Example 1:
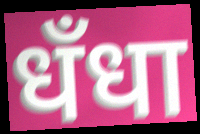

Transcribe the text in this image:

धँधा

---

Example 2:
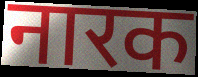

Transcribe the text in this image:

नारक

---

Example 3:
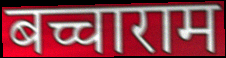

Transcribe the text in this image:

बच्चाराम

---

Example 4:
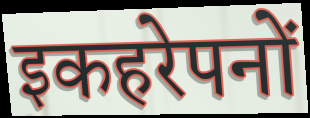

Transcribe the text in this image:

इकहरेपनों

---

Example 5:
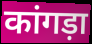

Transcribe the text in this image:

कांगड़ा